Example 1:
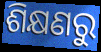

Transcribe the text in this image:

ଶିକ୍ଷଣରୁ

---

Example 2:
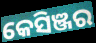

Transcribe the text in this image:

କେସିଞ୍ଜର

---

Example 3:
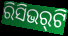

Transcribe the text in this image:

ରିସିଭର୍‌ଟି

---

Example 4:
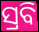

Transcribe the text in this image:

ସ୍ରବି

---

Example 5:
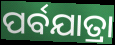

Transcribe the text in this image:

ପର୍ବଯାତ୍ରା